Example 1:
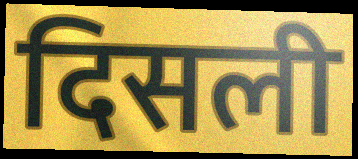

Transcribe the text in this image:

दिसली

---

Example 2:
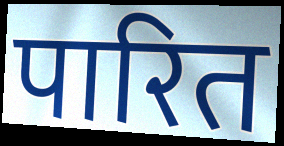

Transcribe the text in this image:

पारित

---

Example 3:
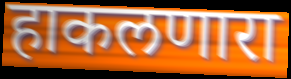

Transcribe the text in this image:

हाकलणारा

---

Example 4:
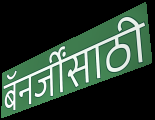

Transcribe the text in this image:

बॅनर्जींसाठी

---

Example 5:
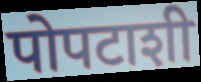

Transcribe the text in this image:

पोपटाशी